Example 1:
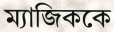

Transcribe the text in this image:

ম্যাজিককে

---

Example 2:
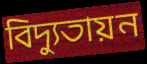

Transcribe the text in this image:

বিদ্যুতায়ন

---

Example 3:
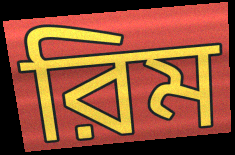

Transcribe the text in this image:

রিম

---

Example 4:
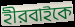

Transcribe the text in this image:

হীরবাইকে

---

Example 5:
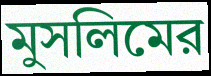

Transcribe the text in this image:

মুসলিমের